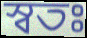
স্বতঃ